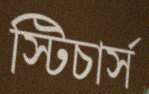
স্টিচার্স